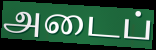
அடைப்